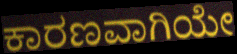
ಕಾರಣವಾಗಿಯೇ